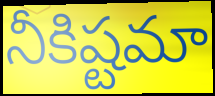
నీకిష్టమా